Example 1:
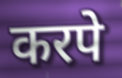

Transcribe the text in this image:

करपे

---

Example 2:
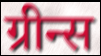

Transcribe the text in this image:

ग्रीन्स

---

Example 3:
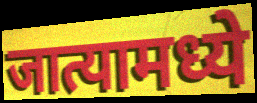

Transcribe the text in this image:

जात्यामध्ये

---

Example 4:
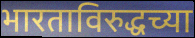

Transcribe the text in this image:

भारताविरुद्धच्या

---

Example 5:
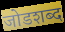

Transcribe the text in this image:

जोडशब्द